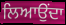
ਲਿਆਉਂਦਾ